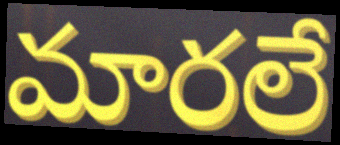
మారలే